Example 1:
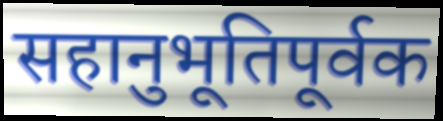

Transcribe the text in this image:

सहानुभूतिपूर्वक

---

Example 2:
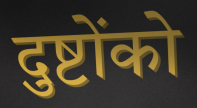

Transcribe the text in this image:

दुष्टोंको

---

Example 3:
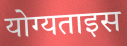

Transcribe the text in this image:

योग्यताइस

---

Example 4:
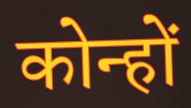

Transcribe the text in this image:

कोन्हों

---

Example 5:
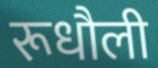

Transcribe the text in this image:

रूधौली